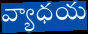
వ్యాధయ